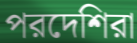
পরদেশিরা